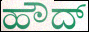
ಹೌದ್